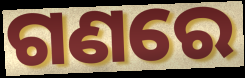
ଗଣରେ